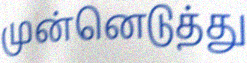
முன்னெடுத்து